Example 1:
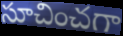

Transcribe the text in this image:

సూచించగా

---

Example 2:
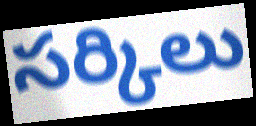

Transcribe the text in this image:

సర్కిలు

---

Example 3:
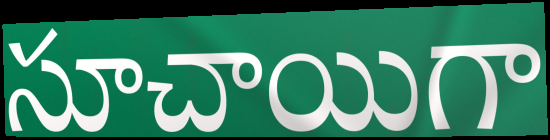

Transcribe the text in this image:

సూచాయిగా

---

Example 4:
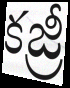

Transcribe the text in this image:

కజ్రీ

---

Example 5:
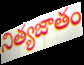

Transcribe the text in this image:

నిత్యజాతం